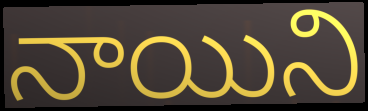
నాయిని